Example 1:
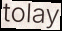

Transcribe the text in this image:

tolay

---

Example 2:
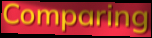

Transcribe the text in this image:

Comparing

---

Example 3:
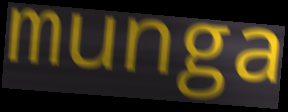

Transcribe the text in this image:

munga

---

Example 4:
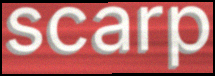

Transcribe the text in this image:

scarp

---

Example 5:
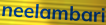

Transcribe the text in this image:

neelambari